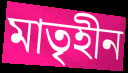
মাতৃহীন